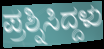
ಪ್ರಶ್ನಿಸಿದ್ದಳು